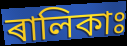
ৰালিকাঃ